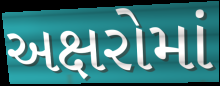
અક્ષરોમાં